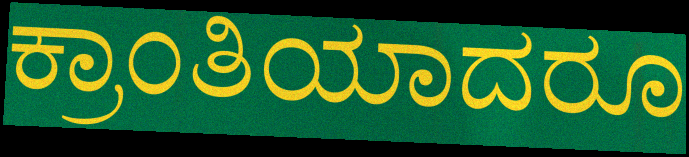
ಕ್ರಾಂತಿಯಾದರೂ